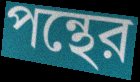
পন্থের